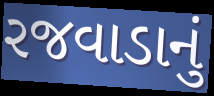
રજવાડાનું